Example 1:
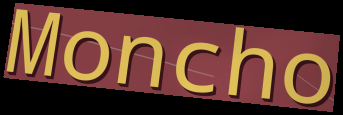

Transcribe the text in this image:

Moncho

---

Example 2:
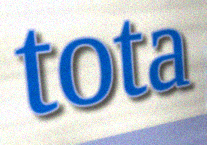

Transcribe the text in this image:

tota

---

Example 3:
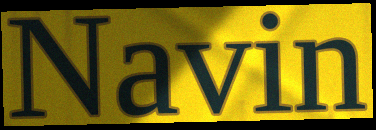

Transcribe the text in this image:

Navin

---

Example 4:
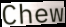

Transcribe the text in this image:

Chew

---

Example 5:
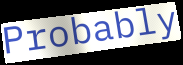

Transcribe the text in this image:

Probably